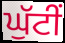
ਘੁੱਟੀਂ